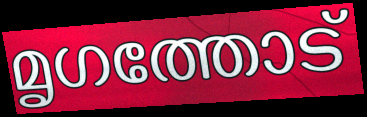
മൃഗത്തോട്